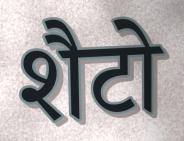
शैटो